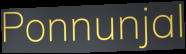
Ponnunjal